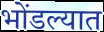
भोंडल्यात